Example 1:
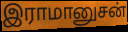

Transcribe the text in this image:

இராமானுசன்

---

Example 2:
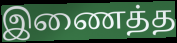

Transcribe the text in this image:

இணைத்த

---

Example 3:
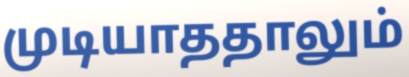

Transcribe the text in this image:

முடியாததாலும்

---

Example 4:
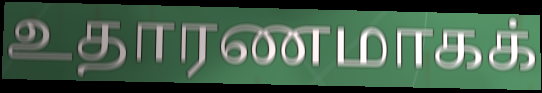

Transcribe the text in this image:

உதாரணமாகக்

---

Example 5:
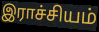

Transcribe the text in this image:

இராச்சியம்